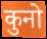
कुनो